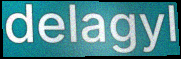
delagyl